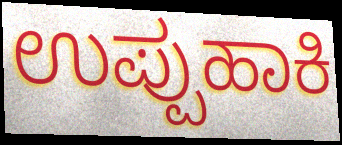
ಉಪ್ಪುಹಾಕಿ